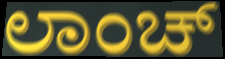
ಲಾಂಚ್